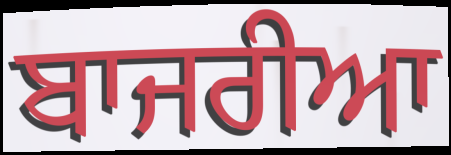
ਬਾਜਰੀਆ